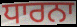
ਧਾਰਨਾ